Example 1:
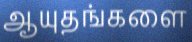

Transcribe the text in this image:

ஆயுதங்களை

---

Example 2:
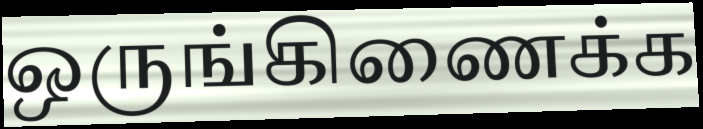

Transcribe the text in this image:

ஒருங்கிணைக்க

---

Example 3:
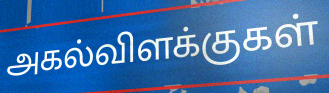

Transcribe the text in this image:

அகல்விளக்குகள்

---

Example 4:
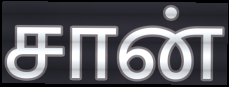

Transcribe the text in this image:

சான்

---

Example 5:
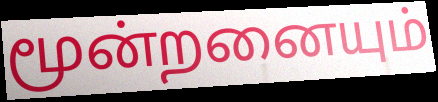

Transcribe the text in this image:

மூன்றனையும்